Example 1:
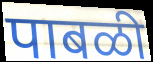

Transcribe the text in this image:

पाबळी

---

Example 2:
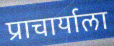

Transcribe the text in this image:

प्राचार्याला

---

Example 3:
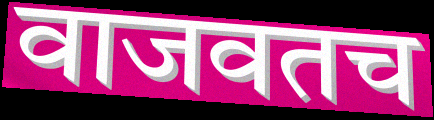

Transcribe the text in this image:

वाजवतच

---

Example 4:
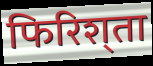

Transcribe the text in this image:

फिरिश्ता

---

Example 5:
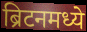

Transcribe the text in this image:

ब्रिटनमध्ये